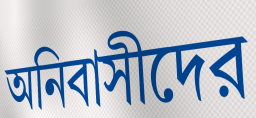
অনিবাসীদের